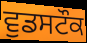
ਵੁਡਸਟੌਕ